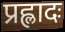
प्रह्लादः